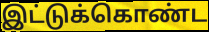
இட்டுக்கொண்ட